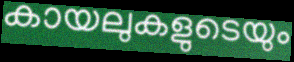
കായലുകളുടെയും